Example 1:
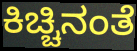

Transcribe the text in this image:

ಕಿಚ್ಚಿನಂತೆ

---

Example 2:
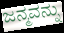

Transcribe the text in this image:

ಜನ್ಮವನ್ನು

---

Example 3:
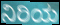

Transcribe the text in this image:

ನಿರಿಯ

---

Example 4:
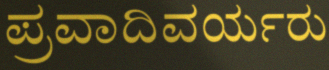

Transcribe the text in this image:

ಪ್ರವಾದಿವರ್ಯರು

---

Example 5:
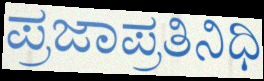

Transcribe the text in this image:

ಪ್ರಜಾಪ್ರತಿನಿಧಿ